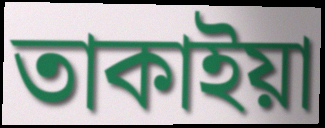
তাকাইয়া